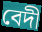
বেদী